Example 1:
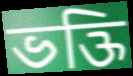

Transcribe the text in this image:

ভক্তি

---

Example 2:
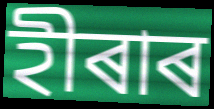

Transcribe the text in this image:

হীৰাৰ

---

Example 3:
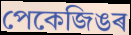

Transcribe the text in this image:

পেকেজিঙৰ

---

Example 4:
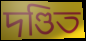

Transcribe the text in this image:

দণ্ডিত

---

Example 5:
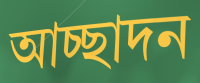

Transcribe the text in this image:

আচ্ছাদন